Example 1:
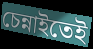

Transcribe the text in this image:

চেন্নাইতেই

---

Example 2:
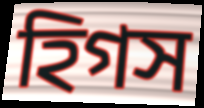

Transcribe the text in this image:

হিগস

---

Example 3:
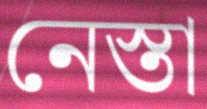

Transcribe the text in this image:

নেস্তা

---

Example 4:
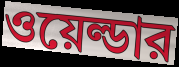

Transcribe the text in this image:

ওয়েল্ডার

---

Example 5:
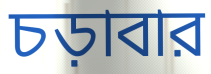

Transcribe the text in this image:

চড়াবার